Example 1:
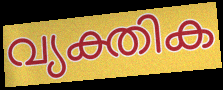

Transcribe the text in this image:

വ്യക്തിക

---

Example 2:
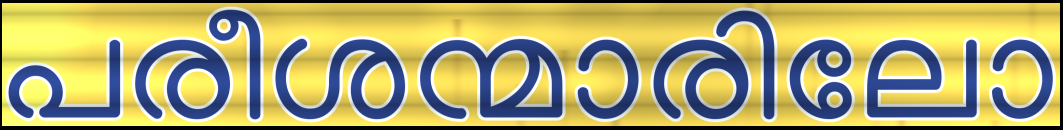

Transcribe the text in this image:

പരീശന്മാരിലോ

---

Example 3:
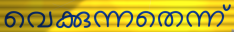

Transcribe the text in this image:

വെക്കുന്നതെന്ന്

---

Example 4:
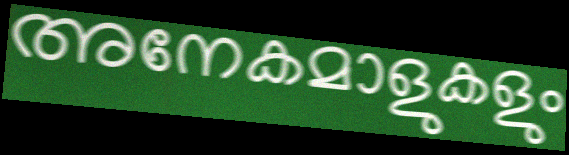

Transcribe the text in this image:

അനേകമാളുകളും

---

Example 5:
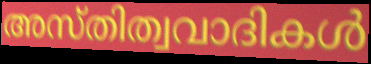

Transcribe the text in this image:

അസ്തിത്വവാദികൾ